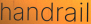
handrail